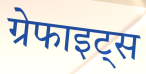
ग्रेफाइट्स